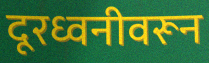
दूरध्वनीवरून